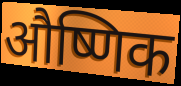
औष्णिक